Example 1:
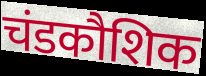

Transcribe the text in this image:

चंडकौशिक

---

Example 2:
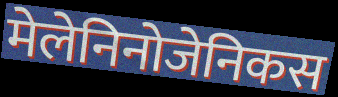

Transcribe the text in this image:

मेलेनिनोजेनिकस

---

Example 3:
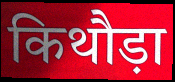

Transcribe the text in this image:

किथौड़ा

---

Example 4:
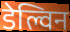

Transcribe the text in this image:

डेल्विन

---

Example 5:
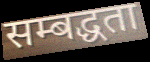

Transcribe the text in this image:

सम्‍बद्धता